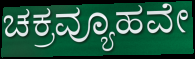
ಚಕ್ರವ್ಯೂಹವೇ